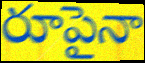
రూపైనా